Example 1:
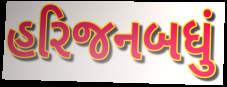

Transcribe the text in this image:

હરિજનબધું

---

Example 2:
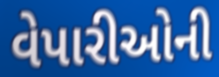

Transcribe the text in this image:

વેપારીઓની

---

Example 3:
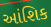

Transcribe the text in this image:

આંશિક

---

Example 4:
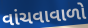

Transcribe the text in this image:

વાંચવાવાળો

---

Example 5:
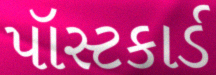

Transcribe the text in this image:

પૉસ્ટકાર્ડ